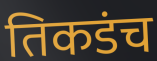
तिकडंच